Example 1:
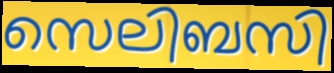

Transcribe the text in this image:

സെലിബസി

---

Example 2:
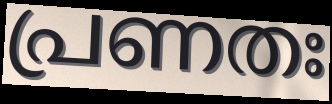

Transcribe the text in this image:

പ്രണതഃ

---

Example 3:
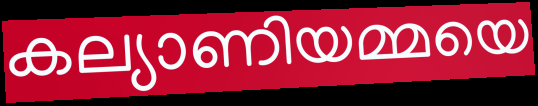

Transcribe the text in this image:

കല്യാണിയമ്മയെ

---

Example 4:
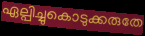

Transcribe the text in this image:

ഏല്പിച്ചുകൊടുക്കരുതേ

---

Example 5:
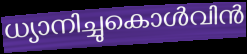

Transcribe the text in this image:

ധ്യാനിച്ചുകൊൾവിൻ